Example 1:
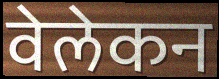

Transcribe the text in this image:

वेलेकन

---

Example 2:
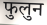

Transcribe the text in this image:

फुलुन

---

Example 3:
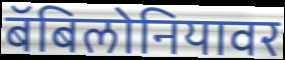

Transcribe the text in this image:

बॅबिलोनियावर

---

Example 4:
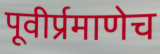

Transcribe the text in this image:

पूवीर्प्रमाणेच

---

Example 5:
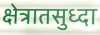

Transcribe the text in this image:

क्षेत्रातसुध्दा